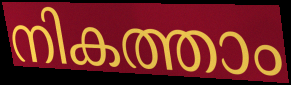
നികത്താം